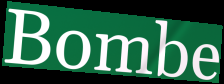
Bombe